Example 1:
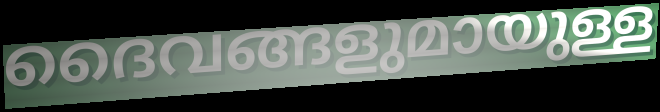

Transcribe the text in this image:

ദൈവങ്ങളുമായുള്ള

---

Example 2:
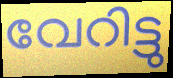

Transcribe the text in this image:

വേറിട്ടു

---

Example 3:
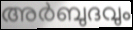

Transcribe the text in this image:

അർബുദവും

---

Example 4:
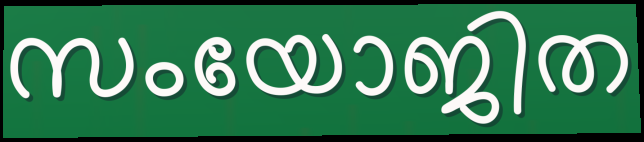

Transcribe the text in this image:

സംയോജിത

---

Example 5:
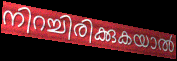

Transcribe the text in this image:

നിറച്ചിരിക്കുകയാൽ